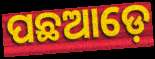
ପଛଆଡ଼େ